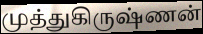
முத்துகிருஷ்ணன்